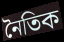
নৈতিক